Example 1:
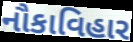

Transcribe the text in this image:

નૌકાવિહાર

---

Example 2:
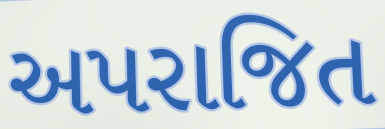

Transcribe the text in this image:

અપરાજિત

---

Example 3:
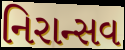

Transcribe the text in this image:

નિરાન્સવ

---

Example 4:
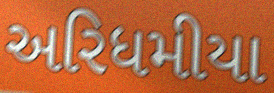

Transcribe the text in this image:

અરિધમીયા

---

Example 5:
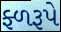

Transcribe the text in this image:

ફ્ળરૂપે